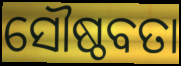
ସୌଷ୍ଠବତା